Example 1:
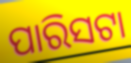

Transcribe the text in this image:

ପାରିସଟା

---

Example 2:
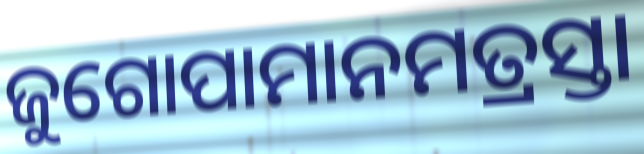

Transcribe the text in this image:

ଜୁଗୋପାମାନମତ୍ରସ୍ତା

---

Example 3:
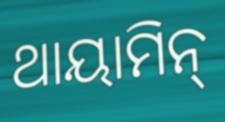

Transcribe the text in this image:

ଥାୟାମିନ୍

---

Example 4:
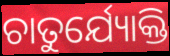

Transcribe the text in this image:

ଚାତୁର୍ଯ୍ୟୋକ୍ତି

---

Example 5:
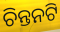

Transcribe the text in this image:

ଚିନ୍ତନଟି